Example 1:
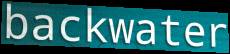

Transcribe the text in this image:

backwater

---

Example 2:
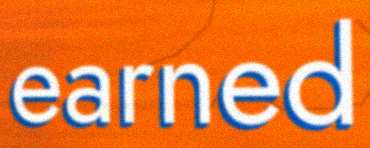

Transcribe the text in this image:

earned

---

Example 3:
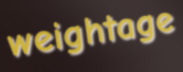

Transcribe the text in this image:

weightage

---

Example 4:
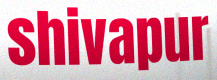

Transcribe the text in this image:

shivapur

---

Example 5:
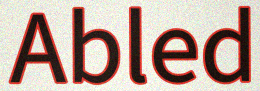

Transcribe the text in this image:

Abled